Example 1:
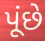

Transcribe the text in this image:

પૂંછે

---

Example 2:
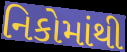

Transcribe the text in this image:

નિકોમાંથી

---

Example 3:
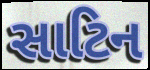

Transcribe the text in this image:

સાટિન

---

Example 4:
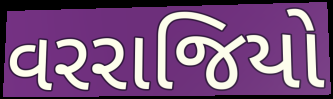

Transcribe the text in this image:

વરરાજિયો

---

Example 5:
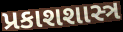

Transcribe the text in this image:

પ્રકાશશાસ્ત્ર